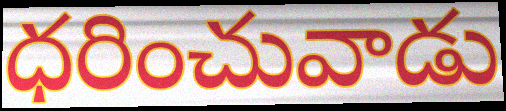
ధరించువాడు